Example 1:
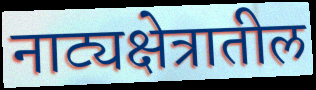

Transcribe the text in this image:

नाट्यक्षेत्रातील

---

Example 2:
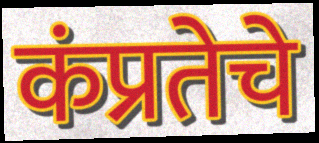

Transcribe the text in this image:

कंप्रतेचे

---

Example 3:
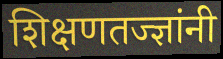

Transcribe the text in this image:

शिक्षणतज्ज्ञांनी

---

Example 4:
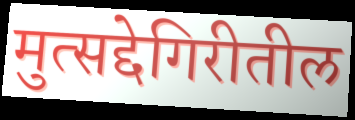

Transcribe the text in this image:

मुत्सद्देगिरीतील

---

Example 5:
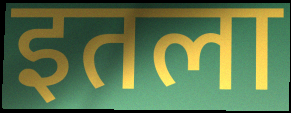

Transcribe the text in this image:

इतला